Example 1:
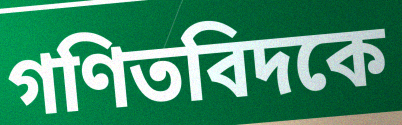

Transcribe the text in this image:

গণিতবিদকে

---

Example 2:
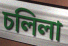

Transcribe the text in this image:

চলিলা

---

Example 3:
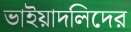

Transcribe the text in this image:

ভাইয়াদলিদের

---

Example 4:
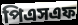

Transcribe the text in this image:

পিএসএফ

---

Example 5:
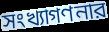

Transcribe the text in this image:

সংখ্যাগণনার